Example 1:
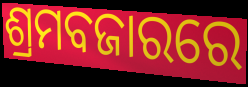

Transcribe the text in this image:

ଶ୍ରମବଜାରରେ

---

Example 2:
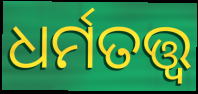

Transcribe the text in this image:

ଧର୍ମତତ୍ତ୍ଵ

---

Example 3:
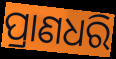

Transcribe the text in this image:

ପ୍ରାଣଧରି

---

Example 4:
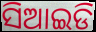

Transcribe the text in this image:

ସିଆଇଡି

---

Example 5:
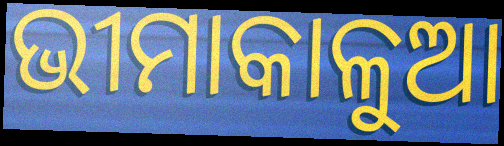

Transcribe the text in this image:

ଭୀମାକାଳୁଆ